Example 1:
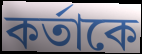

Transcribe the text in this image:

কর্তাকে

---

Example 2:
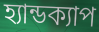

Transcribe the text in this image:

হ্যান্ডক্যাপ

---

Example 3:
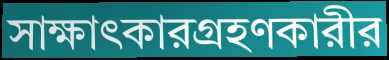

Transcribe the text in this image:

সাক্ষাৎকারগ্রহণকারীর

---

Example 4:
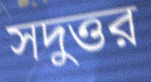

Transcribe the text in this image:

সদুত্তর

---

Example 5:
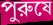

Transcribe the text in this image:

পুরুষে